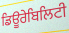
ਡਿਊਰੇਬਿਲਿਟੀ